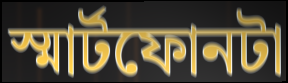
স্মার্টফোনটা